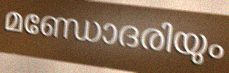
മണ്ഡോദരിയും